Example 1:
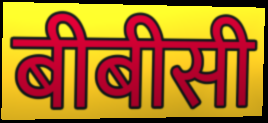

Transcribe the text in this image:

बीबीसी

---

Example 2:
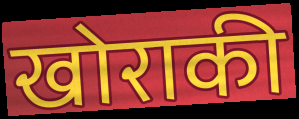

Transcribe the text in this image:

खोराकी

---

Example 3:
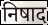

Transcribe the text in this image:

निषाद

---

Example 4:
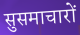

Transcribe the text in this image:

सुसमाचारों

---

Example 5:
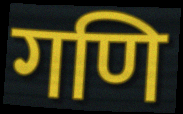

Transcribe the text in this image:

गणि